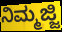
ನಿಮ್ಮಜ್ಜಿ